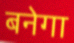
बनेगा